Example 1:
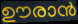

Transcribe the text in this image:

ഊരാൻ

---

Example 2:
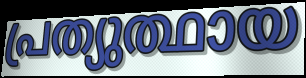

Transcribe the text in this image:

പ്രത്യുത്ഥായ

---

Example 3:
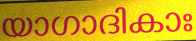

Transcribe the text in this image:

യാഗാദികാഃ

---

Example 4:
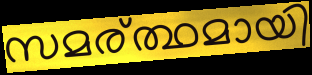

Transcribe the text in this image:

സമര്ത്ഥമായി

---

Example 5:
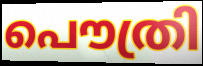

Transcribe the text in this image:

പൌത്രി